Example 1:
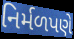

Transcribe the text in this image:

નિર્મળપણે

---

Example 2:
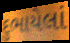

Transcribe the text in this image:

દુભાયેલાં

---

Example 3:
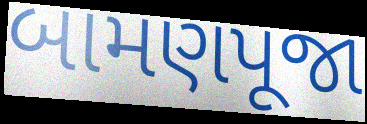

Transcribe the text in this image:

બામણપૂજા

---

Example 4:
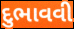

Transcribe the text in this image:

દુભાવવી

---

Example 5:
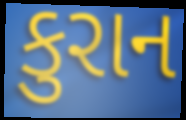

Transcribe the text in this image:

કુરાન